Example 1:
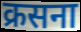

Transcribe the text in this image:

क्रसना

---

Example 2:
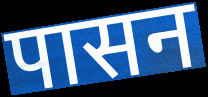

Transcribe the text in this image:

पासन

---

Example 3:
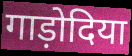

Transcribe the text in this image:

गाड़ोदिया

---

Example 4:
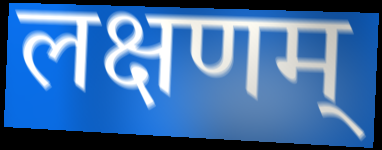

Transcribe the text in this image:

लक्षणम्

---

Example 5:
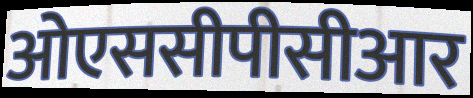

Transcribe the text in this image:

ओएससीपीसीआर